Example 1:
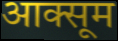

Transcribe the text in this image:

आक्सूम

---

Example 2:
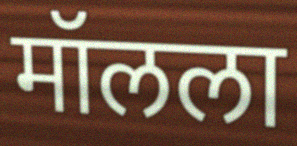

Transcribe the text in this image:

मॉलला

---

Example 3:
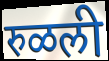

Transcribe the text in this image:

रुळली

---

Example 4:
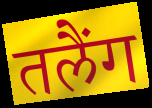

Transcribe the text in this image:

तलैंग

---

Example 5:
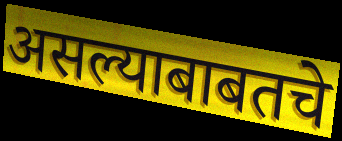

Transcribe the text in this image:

असल्याबाबतचे